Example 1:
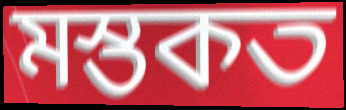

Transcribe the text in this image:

মস্তকত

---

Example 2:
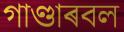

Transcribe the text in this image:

গাণ্ডাৰবল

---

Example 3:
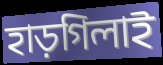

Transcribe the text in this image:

হাড়গিলাই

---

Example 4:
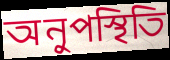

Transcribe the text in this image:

অনুপস্থিতি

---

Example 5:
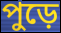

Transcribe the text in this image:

পুড়ে